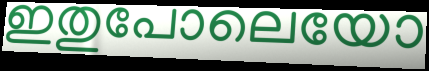
ഇതുപോലെയോ